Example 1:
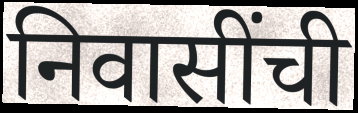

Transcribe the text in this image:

निवासींची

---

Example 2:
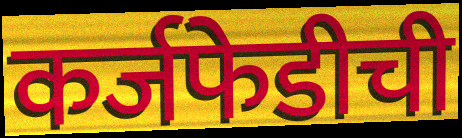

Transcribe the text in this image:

कर्जफेडीची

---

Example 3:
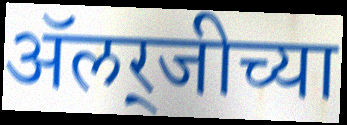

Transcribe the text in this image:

ॲलर्जीच्या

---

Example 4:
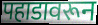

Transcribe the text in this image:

पहाडावरून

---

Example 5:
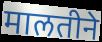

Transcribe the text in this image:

मालतीने